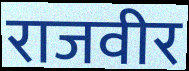
राजवीर